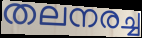
തലനരച്ച